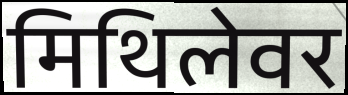
मिथिलेवर